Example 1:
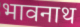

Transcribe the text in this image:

भावनाथ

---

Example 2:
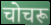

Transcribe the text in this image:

चोचरू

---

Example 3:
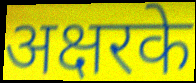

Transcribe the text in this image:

अक्षरके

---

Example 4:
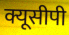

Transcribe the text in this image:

क्यूसीपी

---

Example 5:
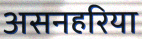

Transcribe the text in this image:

असनहरिया